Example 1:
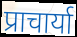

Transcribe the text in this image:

प्राचार्या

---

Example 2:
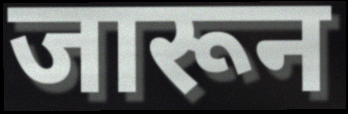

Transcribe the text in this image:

जारून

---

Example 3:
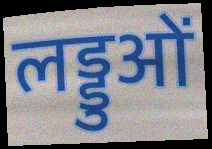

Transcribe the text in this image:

लड्डुओं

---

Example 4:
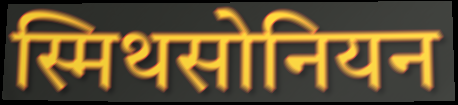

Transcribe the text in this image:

स्मिथसोनियन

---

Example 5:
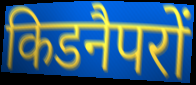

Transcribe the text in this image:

किडनैपरों